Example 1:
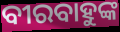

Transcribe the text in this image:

ବୀରବାହୁଙ୍କ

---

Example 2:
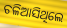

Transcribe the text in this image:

ଚଳିଆସିଥିଲେ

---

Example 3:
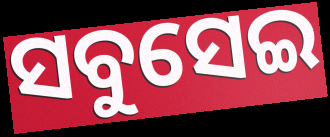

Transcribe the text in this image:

ସବୁସେଇ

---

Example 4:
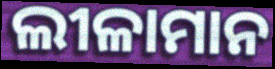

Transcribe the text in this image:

ଲୀଳାମାନ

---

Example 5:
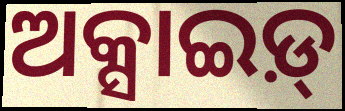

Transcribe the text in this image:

ଅକ୍ସାଇଡ଼୍